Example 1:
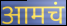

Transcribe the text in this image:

आमचं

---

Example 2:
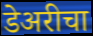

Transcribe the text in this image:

डेअरीचा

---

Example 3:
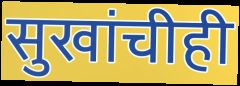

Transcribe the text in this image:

सुखांचीही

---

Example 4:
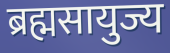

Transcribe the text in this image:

ब्रह्मसायुज्य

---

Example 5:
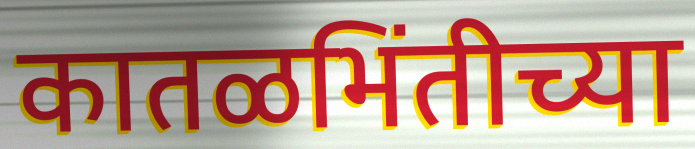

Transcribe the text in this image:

कातळभिंतीच्या